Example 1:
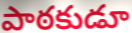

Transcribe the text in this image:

పాఠకుడూ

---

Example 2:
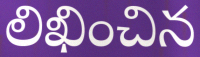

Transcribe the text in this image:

లిఖించిన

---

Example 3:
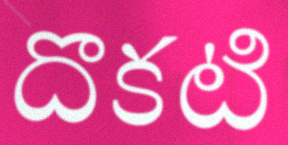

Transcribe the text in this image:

దొకటి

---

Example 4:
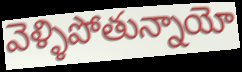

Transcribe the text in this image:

వెళ్ళిపోతున్నాయో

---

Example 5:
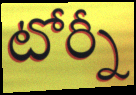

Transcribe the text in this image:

టోర్నీ